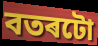
বতৰটো